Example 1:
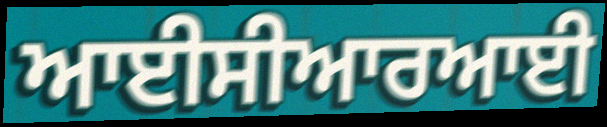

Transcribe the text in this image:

ਆਈਸੀਆਰਆਈ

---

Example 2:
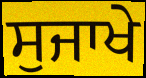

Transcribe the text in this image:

ਸੁਜਾਖੇ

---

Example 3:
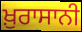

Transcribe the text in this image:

ਖ਼ੁਰਾਸਾਨੀ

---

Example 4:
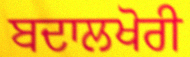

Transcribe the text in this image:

ਬਦਾਲਖੋਰੀ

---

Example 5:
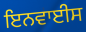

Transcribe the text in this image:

ਇਨਵਾਈਸ